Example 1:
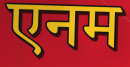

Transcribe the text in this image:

एनम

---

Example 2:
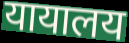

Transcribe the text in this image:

यायालय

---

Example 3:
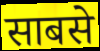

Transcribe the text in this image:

साबसे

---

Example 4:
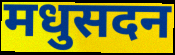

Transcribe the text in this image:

मधुसदन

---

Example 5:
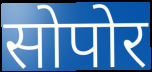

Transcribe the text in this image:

सोपोर